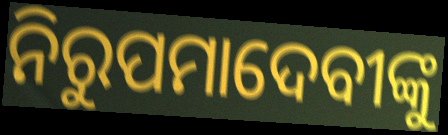
ନିରୁପମାଦେବୀଙ୍କୁ